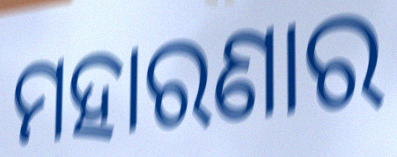
ମହାରଣାର